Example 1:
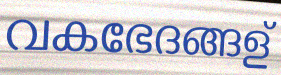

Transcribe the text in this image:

വകഭേദങ്ങള്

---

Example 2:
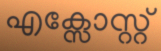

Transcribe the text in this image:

എക്സോസ്റ്റ്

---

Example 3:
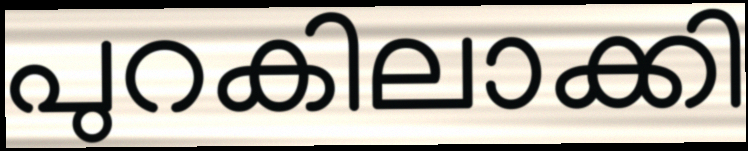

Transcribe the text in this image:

പുറകിലാക്കി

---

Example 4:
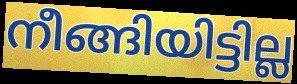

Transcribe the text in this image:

നീങ്ങിയിട്ടില്ല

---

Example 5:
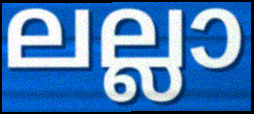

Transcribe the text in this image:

ലല്ലാ